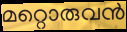
മറ്റൊരുവൻ